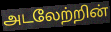
அடலேற்றின்